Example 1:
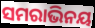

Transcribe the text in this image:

ସମରାଭିନୟ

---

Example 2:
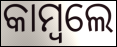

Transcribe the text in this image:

କାମ୍ବଲେ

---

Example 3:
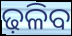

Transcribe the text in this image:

ଢ଼ଳିବ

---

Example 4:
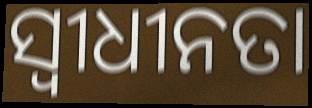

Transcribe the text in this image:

ସ୍ୱୀଧୀନତା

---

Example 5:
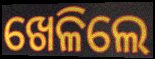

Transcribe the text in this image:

ଖେଳିଲେ